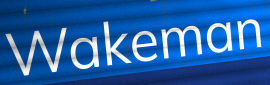
Wakeman